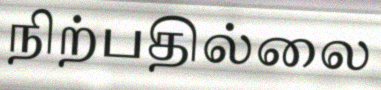
நிற்பதில்லை